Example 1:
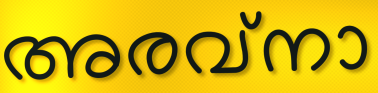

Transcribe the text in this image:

അരവ്നാ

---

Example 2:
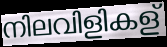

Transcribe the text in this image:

നിലവിളികള്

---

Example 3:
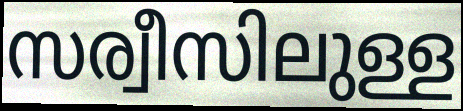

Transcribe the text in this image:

സര്വീസിലുള്ള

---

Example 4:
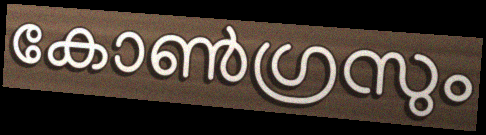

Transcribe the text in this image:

കോൺഗ്രസും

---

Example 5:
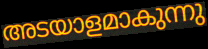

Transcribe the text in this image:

അടയാളമാകുന്നു